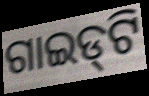
ଗାଇଡ୍‌ଟି